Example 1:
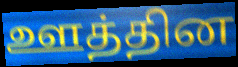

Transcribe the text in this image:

ஊத்தின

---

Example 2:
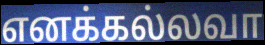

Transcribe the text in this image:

எனக்கல்லவா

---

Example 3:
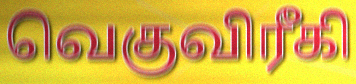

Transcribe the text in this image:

வெகுவிரீகி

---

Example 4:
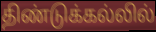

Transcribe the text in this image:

திண்டுக்கல்லில்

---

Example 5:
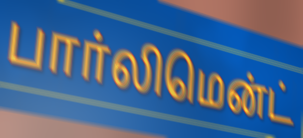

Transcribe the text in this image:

பார்லிமென்ட்